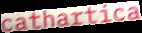
cathartica